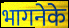
भागनेके